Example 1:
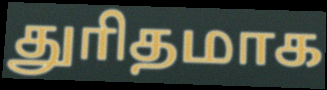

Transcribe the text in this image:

துரிதமாக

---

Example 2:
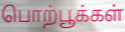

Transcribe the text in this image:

பொற்பூக்கள்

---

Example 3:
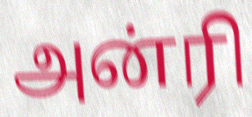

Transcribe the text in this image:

அன்ரி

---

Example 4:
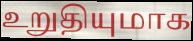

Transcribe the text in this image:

உறுதியுமாக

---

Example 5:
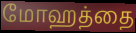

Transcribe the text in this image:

மோஹத்தை